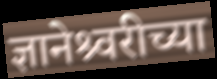
ज्ञानेश्र्वरीच्या